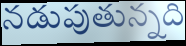
నడుపుతున్నది